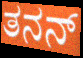
ತನನ್